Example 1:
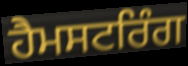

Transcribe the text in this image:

ਹੈਮਸਟਰਿੰਗ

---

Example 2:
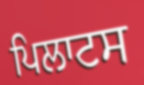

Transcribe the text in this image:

ਪਿਲਾਟਸ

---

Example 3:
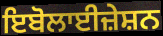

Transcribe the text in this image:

ਇਬੋਲਾਈਜ਼ੇਸ਼ਨ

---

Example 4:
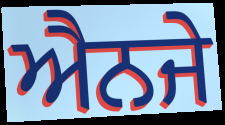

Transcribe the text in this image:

ਐਨਜੇ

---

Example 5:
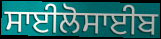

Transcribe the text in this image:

ਸਾਈਲੋਸਾਈਬ